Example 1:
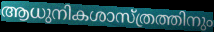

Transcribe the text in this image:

ആധുനികശാസ്ത്രത്തിനും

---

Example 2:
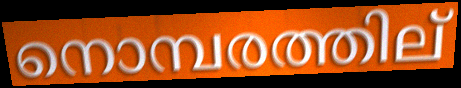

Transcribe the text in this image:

നൊമ്പരത്തില്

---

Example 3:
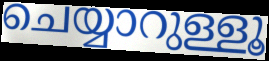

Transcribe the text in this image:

ചെയ്യാറുള്ളൂ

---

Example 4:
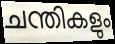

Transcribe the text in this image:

ചന്തികളും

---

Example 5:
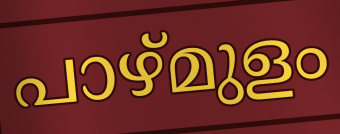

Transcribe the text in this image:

പാഴ്മുളം